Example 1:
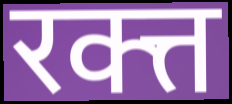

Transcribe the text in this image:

रक्त्त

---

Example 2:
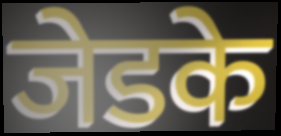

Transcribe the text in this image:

जेडके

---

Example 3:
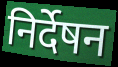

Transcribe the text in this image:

निर्देषन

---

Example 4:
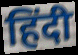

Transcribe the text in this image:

हिंदी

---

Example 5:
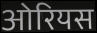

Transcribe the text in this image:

ओरियस